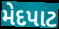
મેદપાટ